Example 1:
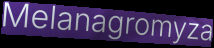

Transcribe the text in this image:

Melanagromyza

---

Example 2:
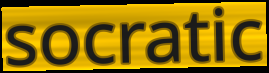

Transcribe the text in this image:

socratic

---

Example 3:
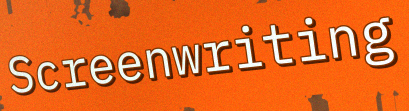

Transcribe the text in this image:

Screenwriting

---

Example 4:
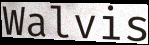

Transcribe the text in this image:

Walvis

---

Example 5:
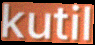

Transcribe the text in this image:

kutil